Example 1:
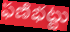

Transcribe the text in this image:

ఫణిభట్టు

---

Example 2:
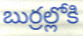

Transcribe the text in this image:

బుర్రల్లోకి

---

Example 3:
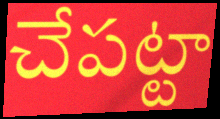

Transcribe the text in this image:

చేపట్టా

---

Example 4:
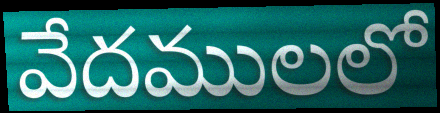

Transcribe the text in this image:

వేదములలో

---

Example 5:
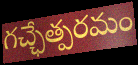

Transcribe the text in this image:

గచ్ఛేత్పరమం